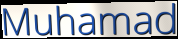
Muhamad